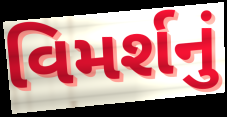
વિમર્શનું